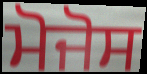
ਮੋਜੋਸ